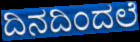
ದಿನದಿಂದಲೆ